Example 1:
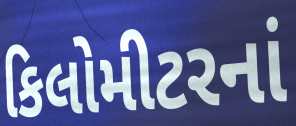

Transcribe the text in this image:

કિલોમીટરનાં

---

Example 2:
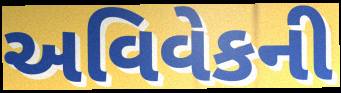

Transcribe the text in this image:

અવિવેકની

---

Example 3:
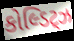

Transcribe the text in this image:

કોલ્ડિટ્ઝ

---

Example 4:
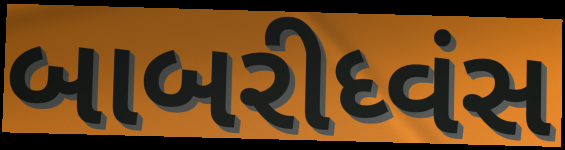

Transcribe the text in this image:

બાબરીધ્વંસ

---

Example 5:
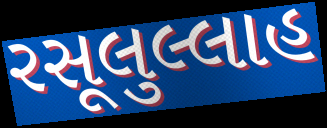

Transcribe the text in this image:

રસૂલુલ્લાહ